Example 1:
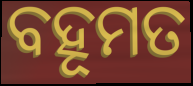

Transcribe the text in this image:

ବହୂମତ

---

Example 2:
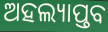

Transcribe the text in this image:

ଅହଲ୍ୟାପ୍ତବ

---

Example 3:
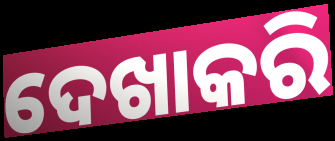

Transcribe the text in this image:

ଦେଖାକରି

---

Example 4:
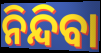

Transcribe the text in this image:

ନିନ୍ଦିବା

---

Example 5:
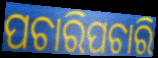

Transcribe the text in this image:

ପଚାରିପଚାରି